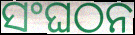
ସଂଘଠନ